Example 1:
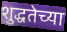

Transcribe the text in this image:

शुद्धतेच्या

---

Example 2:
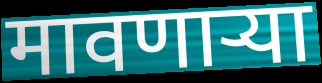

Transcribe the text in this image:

मावणाऱ्या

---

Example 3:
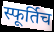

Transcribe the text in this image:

स्फूर्तिच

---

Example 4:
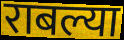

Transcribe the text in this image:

राबल्या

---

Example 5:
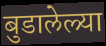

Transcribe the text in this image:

बुडालेल्या